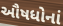
ઔષધોનાં